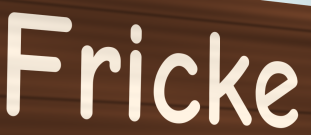
Fricke